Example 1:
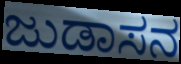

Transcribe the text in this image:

ಜುಡಾಸನ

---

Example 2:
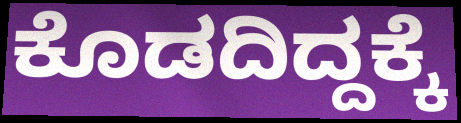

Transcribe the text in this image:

ಕೊಡದಿದ್ದಕ್ಕೆ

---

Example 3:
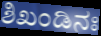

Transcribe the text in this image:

ಶಿಖಂಡಿನಃ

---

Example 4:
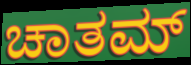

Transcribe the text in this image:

ಚಾತಮ್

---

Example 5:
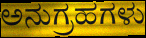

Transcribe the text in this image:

ಅನುಗ್ರಹಗಳು